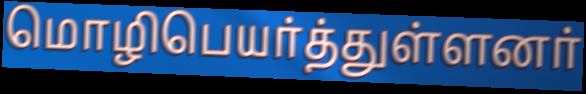
மொழிபெயர்த்துள்ளனர்